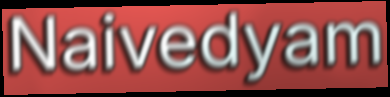
Naivedyam